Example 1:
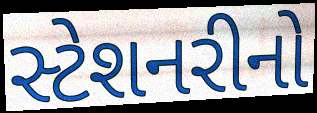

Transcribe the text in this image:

સ્ટેશનરીનો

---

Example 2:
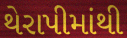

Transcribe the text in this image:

થેરાપીમાંથી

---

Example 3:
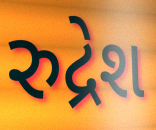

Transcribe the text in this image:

રુદ્રેશ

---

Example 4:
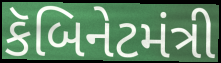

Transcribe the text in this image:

કૅબિનેટમંત્રી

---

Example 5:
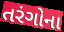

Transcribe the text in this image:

તરંગોના